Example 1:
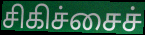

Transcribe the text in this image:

சிகிச்சைச்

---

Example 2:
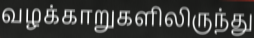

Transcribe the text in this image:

வழக்காறுகளிலிருந்து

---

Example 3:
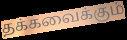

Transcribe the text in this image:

தக்கவைக்கும்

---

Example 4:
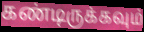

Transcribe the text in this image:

கண்டிருக்கவும்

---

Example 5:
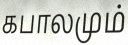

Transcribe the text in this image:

கபாலமும்